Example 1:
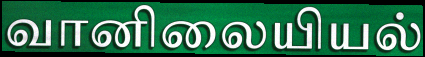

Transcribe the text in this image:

வானிலையியல்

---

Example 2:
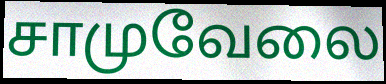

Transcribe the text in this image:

சாமுவேலை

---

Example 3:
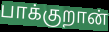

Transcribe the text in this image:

பாக்குறான்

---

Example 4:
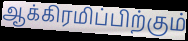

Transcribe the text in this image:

ஆக்கிரமிப்பிற்கும்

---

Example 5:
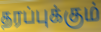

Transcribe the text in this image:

தரப்புக்கும்